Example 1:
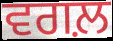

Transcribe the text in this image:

ਵਗਲ਼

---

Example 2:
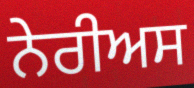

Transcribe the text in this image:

ਨੇਰੀਅਸ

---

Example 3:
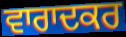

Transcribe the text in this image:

ਵਾਰਾਦਕਰ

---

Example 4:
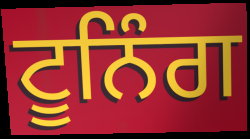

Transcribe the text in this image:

ਟੂਨਿੰਗ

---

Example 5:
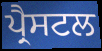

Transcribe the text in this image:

ਪ੍ਰੈਸਟਲ